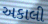
અકાલી